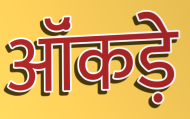
ऑंकड़े